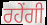
ਰਹੇਂਗੀ